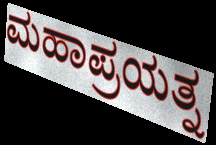
ಮಹಾಪ್ರಯತ್ನ